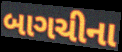
બાગચીના